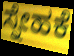
ಸ್ನೇಹಕೆ